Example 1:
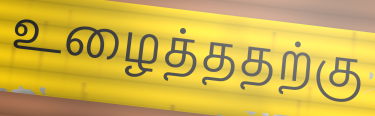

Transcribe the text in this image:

உழைத்ததற்கு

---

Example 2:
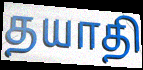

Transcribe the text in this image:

தயாதி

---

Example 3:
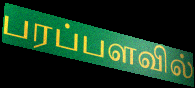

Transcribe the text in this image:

பரப்பளவில்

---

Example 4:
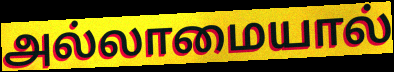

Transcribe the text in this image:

அல்லாமையால்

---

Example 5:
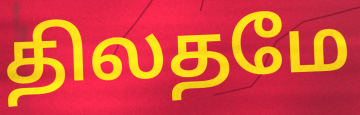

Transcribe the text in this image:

திலதமே